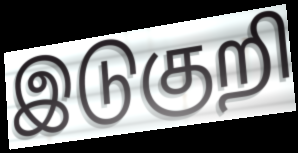
இடுகுறி